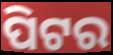
ପିଟର